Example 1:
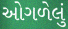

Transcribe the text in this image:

ઓગળેલું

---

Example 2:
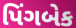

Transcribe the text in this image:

પિંગબેક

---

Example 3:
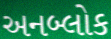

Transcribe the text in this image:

અનબ્લોક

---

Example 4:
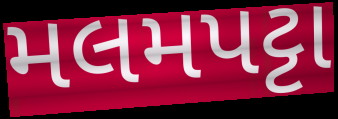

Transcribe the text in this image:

મલમપટ્ટા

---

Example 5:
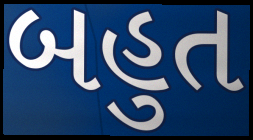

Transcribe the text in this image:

બહુત